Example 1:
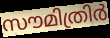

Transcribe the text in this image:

സൗമിത്രിർ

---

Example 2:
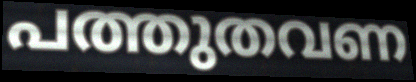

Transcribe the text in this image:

പത്തുതവണ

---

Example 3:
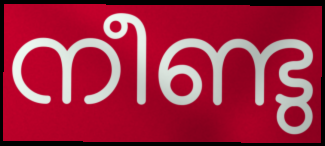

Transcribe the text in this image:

നീണ്ടു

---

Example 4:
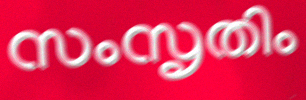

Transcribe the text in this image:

സംസൃതിം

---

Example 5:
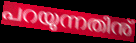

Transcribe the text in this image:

പറയുന്നതിനു്